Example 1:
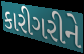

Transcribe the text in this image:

કારીગરીને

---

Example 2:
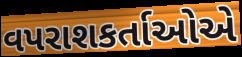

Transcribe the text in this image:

વપરાશકર્તાઓએ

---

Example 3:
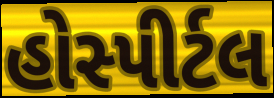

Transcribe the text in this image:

હોસ્પીર્ટલ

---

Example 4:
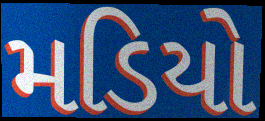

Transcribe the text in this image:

મડિયો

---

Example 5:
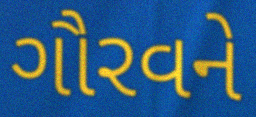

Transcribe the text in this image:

ગૌરવને